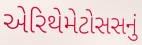
એરિથેમેટોસસનું